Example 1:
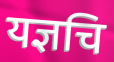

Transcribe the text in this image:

यज्ञचि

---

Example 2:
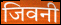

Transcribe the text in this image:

जिवनी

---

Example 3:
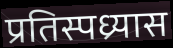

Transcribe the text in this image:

प्रतिस्पध्र्यास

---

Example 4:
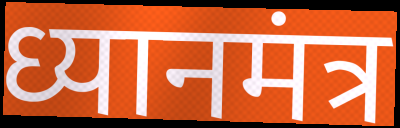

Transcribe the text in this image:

ध्यानमंत्र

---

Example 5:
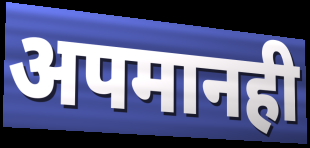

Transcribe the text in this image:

अपमानही